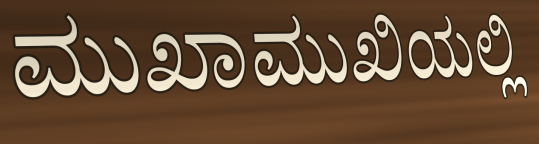
ಮುಖಾಮುಖಿಯಲ್ಲಿ